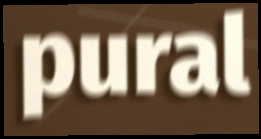
pural